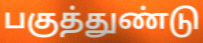
பகுத்துண்டு